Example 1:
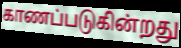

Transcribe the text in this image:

காணப்படுகின்றது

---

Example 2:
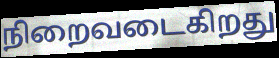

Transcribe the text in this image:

நிறைவடைகிறது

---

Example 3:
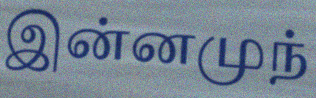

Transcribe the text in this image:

இன்னமுந்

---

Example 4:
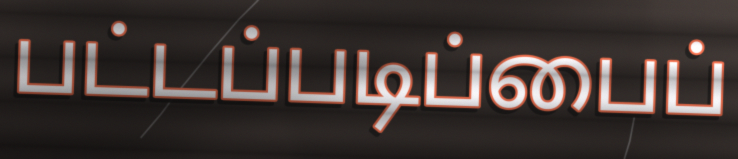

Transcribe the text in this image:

பட்டப்படிப்பைப்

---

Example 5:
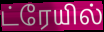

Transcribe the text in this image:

ட்ரேயில்